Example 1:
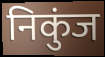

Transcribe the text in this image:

निकुंज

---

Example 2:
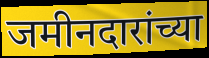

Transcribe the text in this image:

जमीनदारांच्या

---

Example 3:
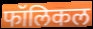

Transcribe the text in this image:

फॉलिकल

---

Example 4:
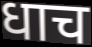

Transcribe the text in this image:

धाच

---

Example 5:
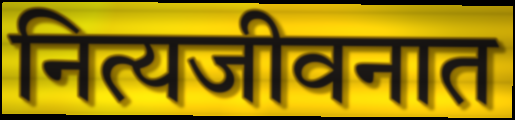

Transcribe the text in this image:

नित्यजीवनात